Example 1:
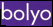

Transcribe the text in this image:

bolyo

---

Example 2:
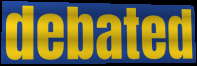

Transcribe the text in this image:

debated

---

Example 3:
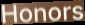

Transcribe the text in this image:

Honors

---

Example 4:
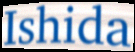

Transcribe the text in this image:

Ishida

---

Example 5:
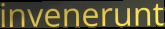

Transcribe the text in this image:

invenerunt